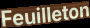
Feuilleton